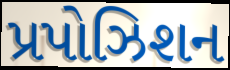
પ્રપોઝિશન